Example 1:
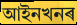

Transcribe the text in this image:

আইনখনৰ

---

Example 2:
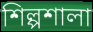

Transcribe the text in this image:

শিল্পশালা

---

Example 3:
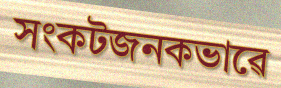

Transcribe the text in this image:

সংকটজনকভাৱে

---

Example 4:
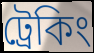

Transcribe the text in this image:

ট্ৰেকিং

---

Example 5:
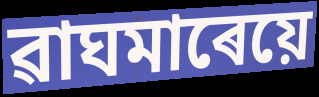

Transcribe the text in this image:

ৱাঘমাৰেয়ে